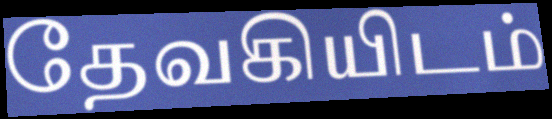
தேவகியிடம்